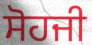
ਸੋਹਜੀ